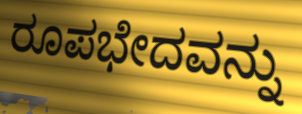
ರೂಪಭೇದವನ್ನು